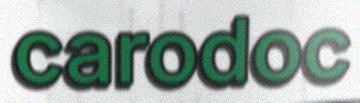
carodoc